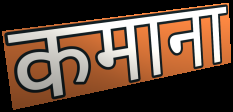
कमाना